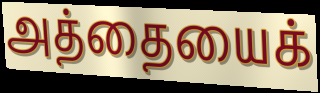
அத்தையைக்